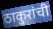
ठाकुरांची